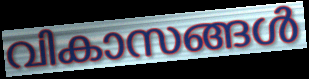
വികാസങ്ങൾ